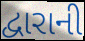
દ્વારાની